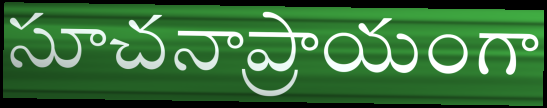
సూచనాప్రాయంగా